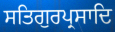
ਸਤਿਗੁਰਪ੍ਰਸਾਦਿ